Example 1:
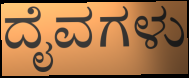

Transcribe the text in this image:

ದೈವಗಳು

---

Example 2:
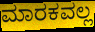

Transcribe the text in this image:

ಮಾರಕವಲ್ಲ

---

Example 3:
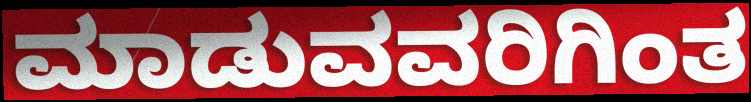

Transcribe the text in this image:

ಮಾಡುವವರಿಗಿಂತ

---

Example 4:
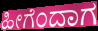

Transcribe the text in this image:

ಹೀಗೆಂದಾಗ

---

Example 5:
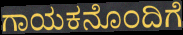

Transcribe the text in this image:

ಗಾಯಕನೊಂದಿಗೆ